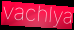
vachlya